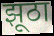
झूठा